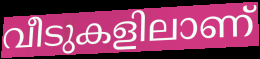
വീടുകളിലാണ്